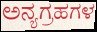
ಅನ್ಯಗ್ರಹಗಳ